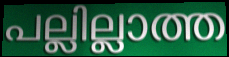
പല്ലില്ലാത്ത